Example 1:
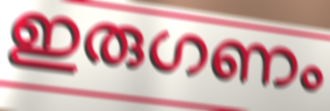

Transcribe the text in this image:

ഇരുഗണം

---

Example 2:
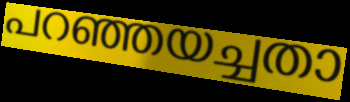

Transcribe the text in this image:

പറഞ്ഞയച്ചതാ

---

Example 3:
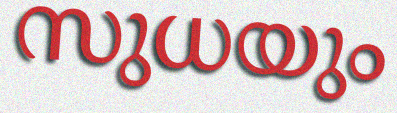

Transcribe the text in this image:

സുധയും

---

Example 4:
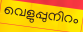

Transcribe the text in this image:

വെളുപ്പുനിറം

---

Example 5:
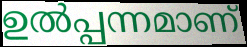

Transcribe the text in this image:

ഉൽപ്പന്നമാണ്